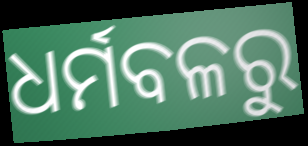
ଧର୍ମବଳରୁ